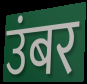
उंबर